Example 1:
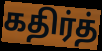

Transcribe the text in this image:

கதிர்த்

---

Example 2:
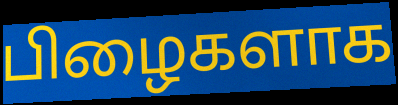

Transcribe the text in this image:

பிழைகளாக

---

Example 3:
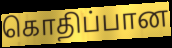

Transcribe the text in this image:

கொதிப்பான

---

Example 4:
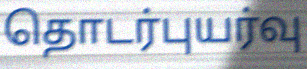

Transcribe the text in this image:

தொடர்புயர்வு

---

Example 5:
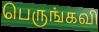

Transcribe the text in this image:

பெருங்கவி